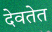
देवतेत